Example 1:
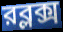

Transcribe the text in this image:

রব্লক্স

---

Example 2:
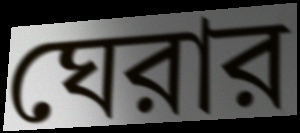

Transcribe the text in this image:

ঘেরার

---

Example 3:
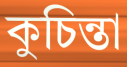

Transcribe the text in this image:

কুচিন্তা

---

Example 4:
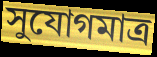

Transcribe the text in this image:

সুযোগমাত্র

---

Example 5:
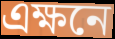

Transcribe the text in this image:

এক্ষনে